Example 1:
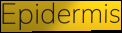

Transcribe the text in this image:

Epidermis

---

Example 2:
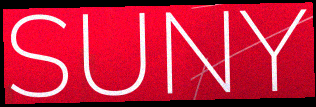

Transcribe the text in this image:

SUNY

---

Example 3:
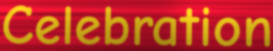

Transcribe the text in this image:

Celebration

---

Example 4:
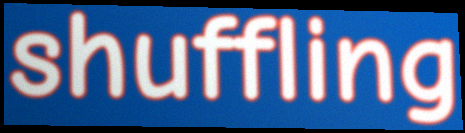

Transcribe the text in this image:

shuffling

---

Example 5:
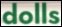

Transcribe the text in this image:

dolls